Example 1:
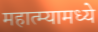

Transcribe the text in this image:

महात्म्यामध्ये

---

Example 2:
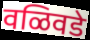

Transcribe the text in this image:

वळिवडे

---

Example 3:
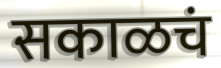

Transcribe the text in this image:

सकाळचं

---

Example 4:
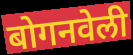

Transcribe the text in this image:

बोगनवेली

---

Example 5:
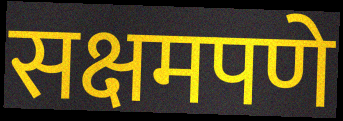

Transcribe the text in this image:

सक्षमपणे